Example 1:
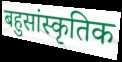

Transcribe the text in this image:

बहुसांस्कृतिक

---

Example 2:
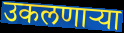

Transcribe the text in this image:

उकलणाऱ्या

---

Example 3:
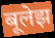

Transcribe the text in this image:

बूलेझ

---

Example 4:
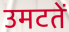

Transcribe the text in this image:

उमटतें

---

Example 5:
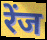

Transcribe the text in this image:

रेंज